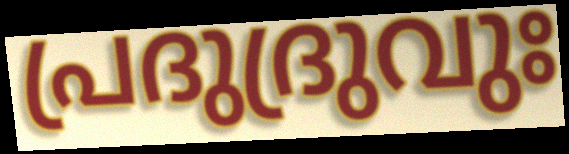
പ്രദുദ്രുവുഃ